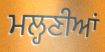
ਮਲ੍ਹਣੀਆਂ